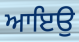
ਆਇਉ